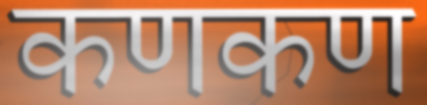
कणकण